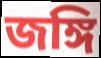
জঙ্গি